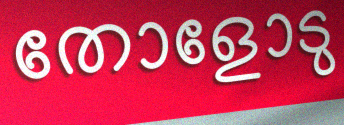
തോളോടു